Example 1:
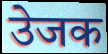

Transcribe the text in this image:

उेजक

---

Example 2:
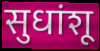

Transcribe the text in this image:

सुधांशू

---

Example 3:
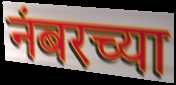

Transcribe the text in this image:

नंबरच्या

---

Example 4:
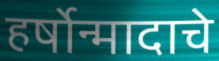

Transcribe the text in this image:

हर्षोन्मादाचे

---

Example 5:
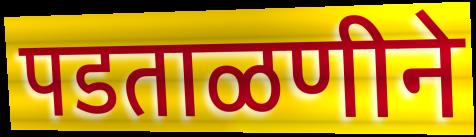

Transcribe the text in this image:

पडताळणीने